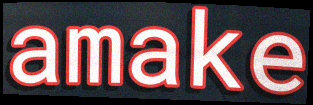
amake